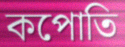
কপোতি